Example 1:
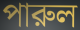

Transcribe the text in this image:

পারুল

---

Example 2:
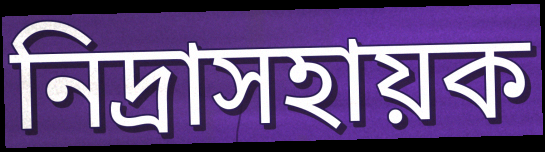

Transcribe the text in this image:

নিদ্রাসহায়ক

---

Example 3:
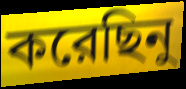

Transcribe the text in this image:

করেছিনু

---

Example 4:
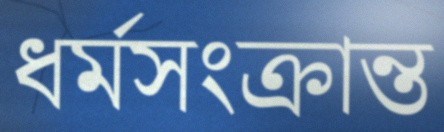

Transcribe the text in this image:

ধর্মসংক্রান্ত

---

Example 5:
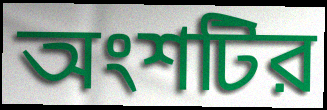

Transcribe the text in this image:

অংশটির